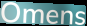
Omens